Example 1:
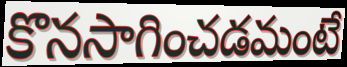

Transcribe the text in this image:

కొనసాగించడమంటే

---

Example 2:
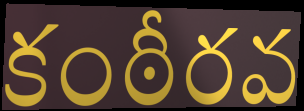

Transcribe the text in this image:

కంఠీరవ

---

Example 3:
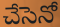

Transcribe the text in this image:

చేసెనో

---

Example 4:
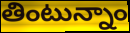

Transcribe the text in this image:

తింటున్నాం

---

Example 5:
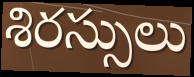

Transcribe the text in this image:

శిరస్సులు